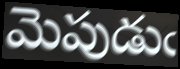
మెపుడుఁ